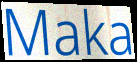
Maka